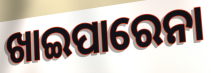
ଖାଇପାରେନା